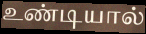
உண்டியால்